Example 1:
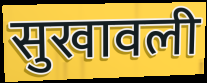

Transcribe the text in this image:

सुखावली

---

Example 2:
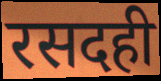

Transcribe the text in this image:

रसदही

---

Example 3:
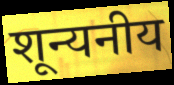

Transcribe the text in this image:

शून्यनीय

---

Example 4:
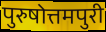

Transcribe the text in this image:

पुरुषोत्तमपुरी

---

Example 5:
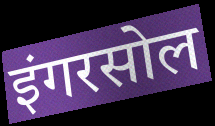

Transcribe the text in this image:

इंगरसोल